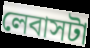
লেবাসটা